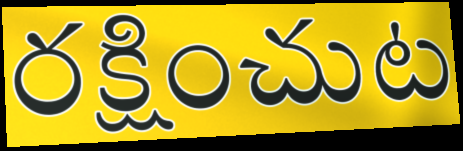
రక్షించుట